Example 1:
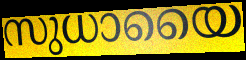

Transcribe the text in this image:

സുധായൈ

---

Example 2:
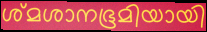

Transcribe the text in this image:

ശ്മശാനഭൂമിയായി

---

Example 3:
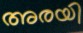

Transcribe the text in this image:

അരയി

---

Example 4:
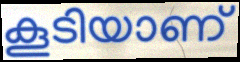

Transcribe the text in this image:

കൂടിയാണ്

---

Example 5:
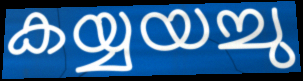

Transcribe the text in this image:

കയ്യയച്ചു